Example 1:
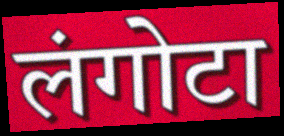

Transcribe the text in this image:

लंगोटा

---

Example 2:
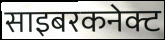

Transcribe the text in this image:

साइबरकनेक्ट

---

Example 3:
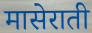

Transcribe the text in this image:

मासेराती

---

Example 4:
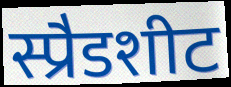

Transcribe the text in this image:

स्प्रैडशीट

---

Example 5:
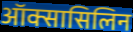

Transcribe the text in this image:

ऑक्सासिलिन